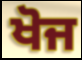
ਖੋਜ